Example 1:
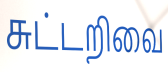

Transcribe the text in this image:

சுட்டறிவை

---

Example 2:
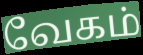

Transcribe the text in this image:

வேகம்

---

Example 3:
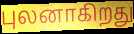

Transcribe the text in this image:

புலனாகிறது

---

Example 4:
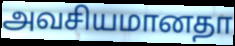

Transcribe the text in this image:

அவசியமானதா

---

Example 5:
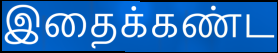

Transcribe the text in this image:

இதைக்கண்ட